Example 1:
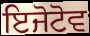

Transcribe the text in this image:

ਇਜੋਟੋਵ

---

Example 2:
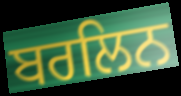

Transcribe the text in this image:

ਬਰਲਿਨ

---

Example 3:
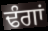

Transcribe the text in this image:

ਢੰਗਾਂ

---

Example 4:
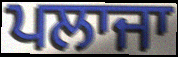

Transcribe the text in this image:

ਪਲਾਜਾ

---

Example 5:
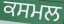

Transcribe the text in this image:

ਕਸਮਲ